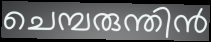
ചെമ്പരുന്തിൻ